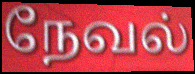
நேவல்